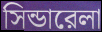
সিন্ডারেলা